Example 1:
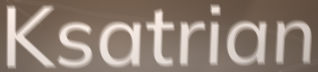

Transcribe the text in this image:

Ksatrian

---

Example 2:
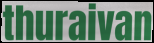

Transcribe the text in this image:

thuraivan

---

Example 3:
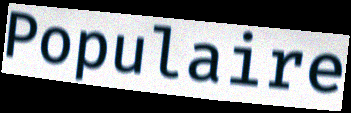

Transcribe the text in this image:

Populaire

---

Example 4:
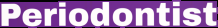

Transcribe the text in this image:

Periodontist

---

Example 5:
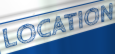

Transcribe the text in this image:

LOCATION